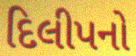
દિલીપનો